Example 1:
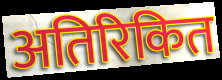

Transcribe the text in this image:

अतिरिकित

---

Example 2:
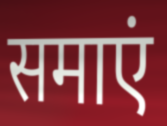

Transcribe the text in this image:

समाएं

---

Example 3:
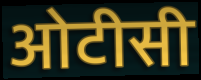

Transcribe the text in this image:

ओटीसी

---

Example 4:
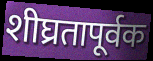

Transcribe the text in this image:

शीघ्रतापूर्वक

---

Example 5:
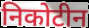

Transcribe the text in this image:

निकोटीन